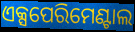
ଏକ୍ସପେରିମେଣ୍ଟାଲ